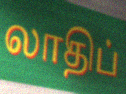
லாதிப்